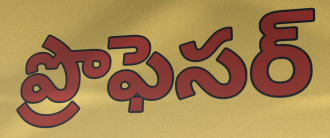
ప్రొఫెసర్